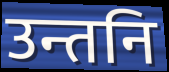
उन्तनि